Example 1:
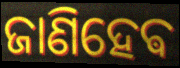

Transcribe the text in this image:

ଜାଣିହେଵ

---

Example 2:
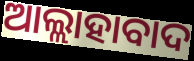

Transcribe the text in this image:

ଆଲ୍ଲାହାବାଦ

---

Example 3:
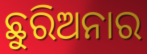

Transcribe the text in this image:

ଛୁରିଅନାର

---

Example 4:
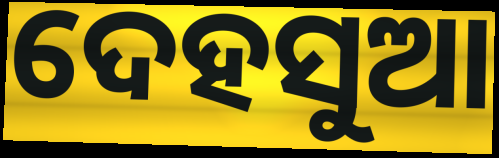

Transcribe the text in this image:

ଦେହସୁଆ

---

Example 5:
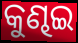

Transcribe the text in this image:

କୁଣ୍ଢଇ